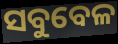
ସବୁବେଳ